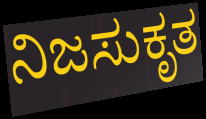
ನಿಜಸುಕೃತ